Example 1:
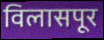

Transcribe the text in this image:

विलासपूर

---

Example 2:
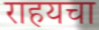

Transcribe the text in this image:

राहयचा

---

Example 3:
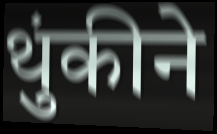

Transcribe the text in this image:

थुंकीने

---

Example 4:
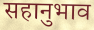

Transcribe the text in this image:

सहानुभाव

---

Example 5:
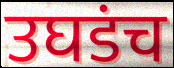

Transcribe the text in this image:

उघडंच